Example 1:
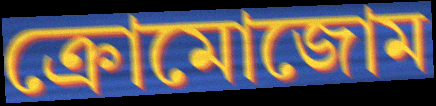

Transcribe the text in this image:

ক্রোমোজোম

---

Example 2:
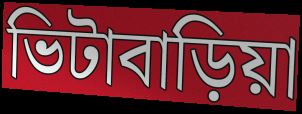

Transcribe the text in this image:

ভিটাবাড়িয়া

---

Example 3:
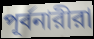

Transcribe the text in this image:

পূর্বনারীরা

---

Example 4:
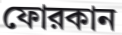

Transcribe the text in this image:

ফোরকান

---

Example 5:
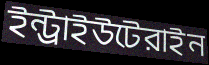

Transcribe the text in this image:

ইন্ট্রাইউটেরাইন